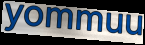
yommuu